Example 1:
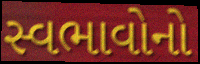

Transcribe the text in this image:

સ્વભાવોનો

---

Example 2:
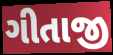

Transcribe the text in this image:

ગીતાજી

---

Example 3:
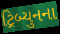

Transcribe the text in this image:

ટ્રિબ્યુનના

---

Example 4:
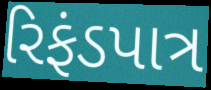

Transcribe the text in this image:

રિફંડપાત્ર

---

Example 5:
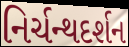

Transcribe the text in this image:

નિર્ચન્થદર્શન